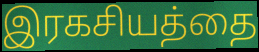
இரகசியத்தை